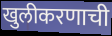
खुलीकरणाची